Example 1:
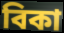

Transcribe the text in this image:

বিকা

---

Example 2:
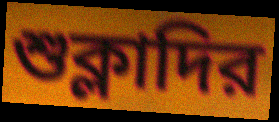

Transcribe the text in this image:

শুক্লাদির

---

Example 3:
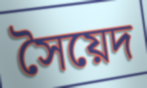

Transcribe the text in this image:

সৈয়েদ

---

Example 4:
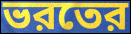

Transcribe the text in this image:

ভরতের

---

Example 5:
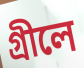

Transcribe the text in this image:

গ্রীলে